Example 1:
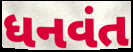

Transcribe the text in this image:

ધનવંત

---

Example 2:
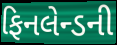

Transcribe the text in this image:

ફિનલેન્ડની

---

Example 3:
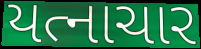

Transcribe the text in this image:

યત્નાચાર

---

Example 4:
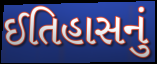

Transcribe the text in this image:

ઈતિહાસનું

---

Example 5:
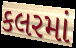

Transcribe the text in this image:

કલરમાં